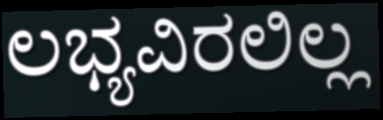
ಲಭ್ಯವಿರಲಿಲ್ಲ